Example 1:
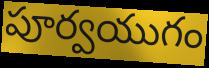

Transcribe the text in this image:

పూర్వయుగం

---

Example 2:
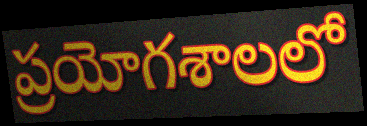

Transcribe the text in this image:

ప్రయోగశాలలో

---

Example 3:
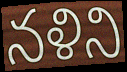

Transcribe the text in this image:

నళిని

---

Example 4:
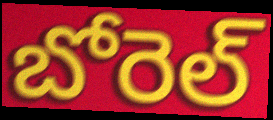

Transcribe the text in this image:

బోరెల్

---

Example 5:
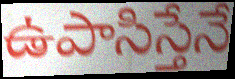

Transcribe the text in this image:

ఉపాసిస్తేనే